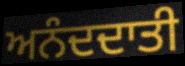
ਅਨੰਦਦਾਤੀ